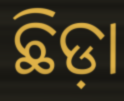
ଛିଡ଼ା